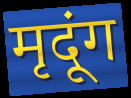
मृदूंग